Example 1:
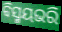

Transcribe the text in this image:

ବିସ୍ମୟଭରି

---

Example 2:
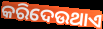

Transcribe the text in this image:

କରିଦେଉଥାଏ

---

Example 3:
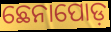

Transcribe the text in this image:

ଛେନାପୋଡ଼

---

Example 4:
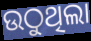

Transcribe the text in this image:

ଉଠୁଥିଲା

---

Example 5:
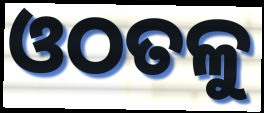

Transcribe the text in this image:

ଓଠତଳୁ